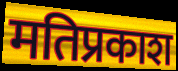
मतिप्रकाश